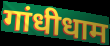
गांधीधाम